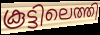
കൂട്ടിലെത്തി